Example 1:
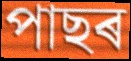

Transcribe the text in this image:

পাছৰ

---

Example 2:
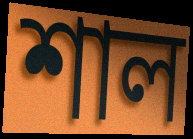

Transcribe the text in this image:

শাল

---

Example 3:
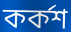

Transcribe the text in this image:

কৰ্কশ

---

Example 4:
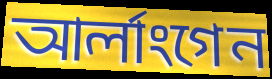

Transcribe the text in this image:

আৰ্লাংগেন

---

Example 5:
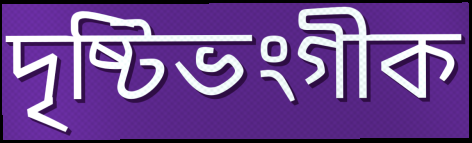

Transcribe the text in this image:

দৃষ্টিভংগীক